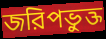
জরিপভুক্ত